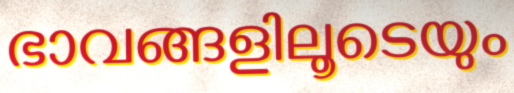
ഭാവങ്ങളിലൂടെയും